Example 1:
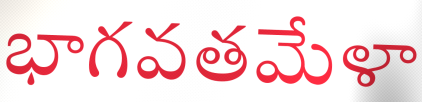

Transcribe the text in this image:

భాగవతమేళా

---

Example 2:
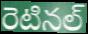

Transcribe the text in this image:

రెటినల్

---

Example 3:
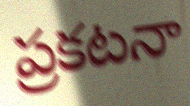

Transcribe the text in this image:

ప్రకటనా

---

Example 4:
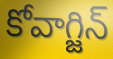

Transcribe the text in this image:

కోవాగ్జిన్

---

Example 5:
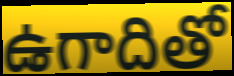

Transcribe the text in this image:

ఉగాదితో